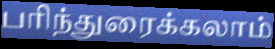
பரிந்துரைக்கலாம்